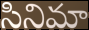
సినిమా